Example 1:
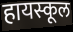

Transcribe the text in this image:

हायस्‍कूल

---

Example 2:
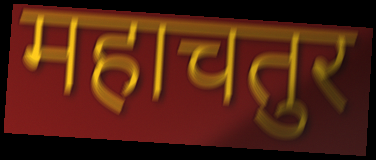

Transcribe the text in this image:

महाचतुर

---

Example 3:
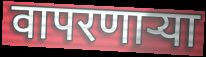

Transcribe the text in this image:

वापरणाऱ्या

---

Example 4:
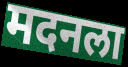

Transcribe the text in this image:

मदनला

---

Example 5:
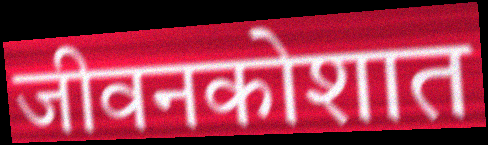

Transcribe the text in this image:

जीवनकोशात